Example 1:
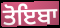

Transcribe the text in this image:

ਤੋਇਬਾ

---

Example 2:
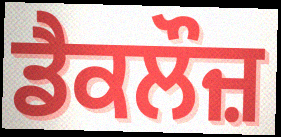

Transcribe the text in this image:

ਡੈਕਲੌਜ਼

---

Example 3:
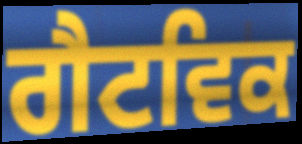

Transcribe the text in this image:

ਗੈਟਵਿਕ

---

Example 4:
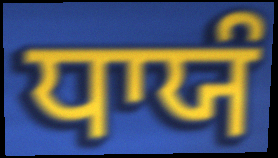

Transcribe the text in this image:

ਧਾਯੰ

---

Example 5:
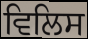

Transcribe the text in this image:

ਵਿਲਿਸ